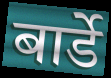
बार्डे